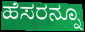
ಹೆಸರನ್ನೂ